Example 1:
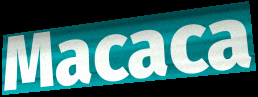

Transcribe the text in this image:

Macaca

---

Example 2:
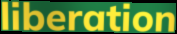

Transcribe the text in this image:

liberation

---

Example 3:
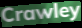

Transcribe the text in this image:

Crawley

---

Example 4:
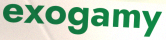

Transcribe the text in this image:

exogamy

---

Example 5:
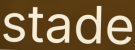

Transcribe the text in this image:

stade